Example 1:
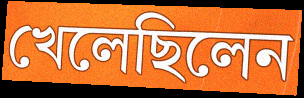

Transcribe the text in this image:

খেলেছিলেন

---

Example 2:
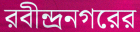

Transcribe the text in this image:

রবীন্দ্রনগরের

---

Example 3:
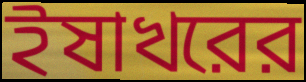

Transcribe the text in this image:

ইষাখরের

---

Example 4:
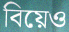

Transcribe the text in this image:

বিয়েও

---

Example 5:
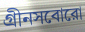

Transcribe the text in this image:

গ্রীনসবোরো